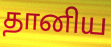
தானிய